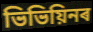
ভিভিয়িনৰ